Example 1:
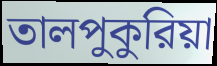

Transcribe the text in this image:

তালপুকুরিয়া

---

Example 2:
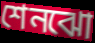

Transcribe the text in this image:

শেনঝো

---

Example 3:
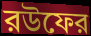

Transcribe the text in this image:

রউফের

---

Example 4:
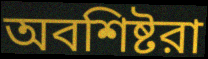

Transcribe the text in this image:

অবশিষ্টরা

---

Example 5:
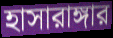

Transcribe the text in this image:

হাসারাঙ্গার